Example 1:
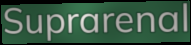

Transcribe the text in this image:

Suprarenal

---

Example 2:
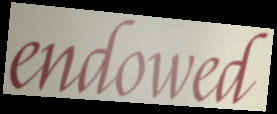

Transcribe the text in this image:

endowed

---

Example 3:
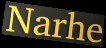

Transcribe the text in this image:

Narhe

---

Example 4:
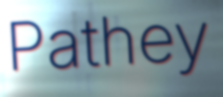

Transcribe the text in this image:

Pathey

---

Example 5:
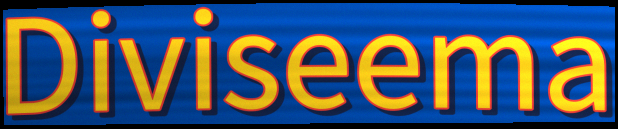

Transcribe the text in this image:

Diviseema